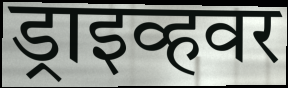
ड्राइव्हवर